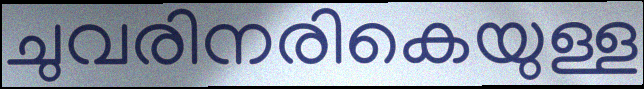
ചുവരിനരികെയുള്ള